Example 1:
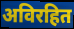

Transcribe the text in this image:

अविरहित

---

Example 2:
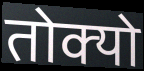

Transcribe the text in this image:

तोक्‍यो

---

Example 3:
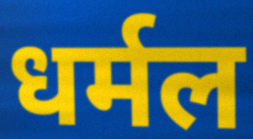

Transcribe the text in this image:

धर्मल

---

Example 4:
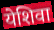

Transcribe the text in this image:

येशिवा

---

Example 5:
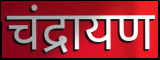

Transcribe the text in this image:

चंद्रायण